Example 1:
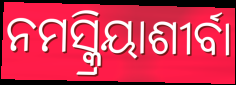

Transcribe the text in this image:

ନମସ୍କ୍ରିୟାଶୀର୍ବା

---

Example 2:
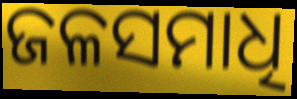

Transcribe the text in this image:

ଜଳସମାଧି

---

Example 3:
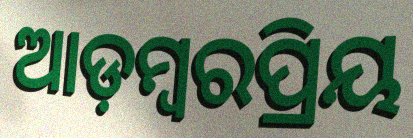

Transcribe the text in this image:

ଆଡ଼ମ୍ବରପ୍ରିୟ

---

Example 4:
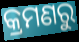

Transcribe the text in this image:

କ୍ରମଣରୁ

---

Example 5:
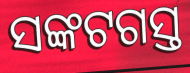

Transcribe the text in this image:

ସଙ୍କଟଗସ୍ତ